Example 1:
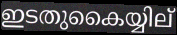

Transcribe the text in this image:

ഇടതുകൈയ്യില്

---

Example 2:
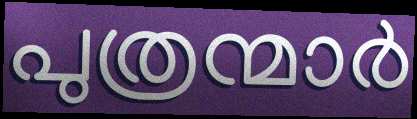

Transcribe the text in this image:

പുത്രന്മാർ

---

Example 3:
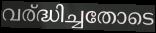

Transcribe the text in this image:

വര്ദ്ധിച്ചതോടെ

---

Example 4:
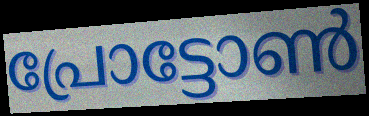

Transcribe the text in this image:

പ്രോട്ടോൺ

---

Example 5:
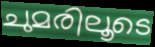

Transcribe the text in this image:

ചുമരിലൂടെ